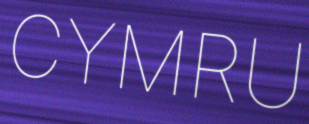
CYMRU